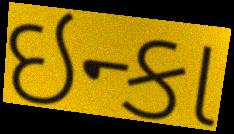
ઇન્કા